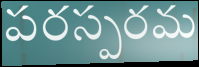
పరస్పరమ